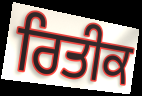
ਰਿਤੀਕ